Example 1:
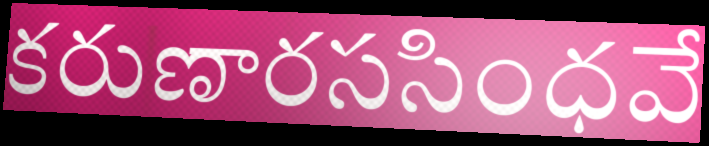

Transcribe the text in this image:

కరుణారససింధవే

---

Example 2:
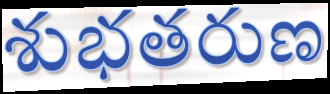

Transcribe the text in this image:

శుభతరుణ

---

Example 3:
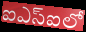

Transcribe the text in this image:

ఐఎస్ఐలో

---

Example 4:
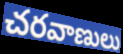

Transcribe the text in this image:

చరవాణులు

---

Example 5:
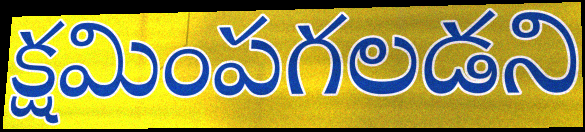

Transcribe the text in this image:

క్షమింపగలడని